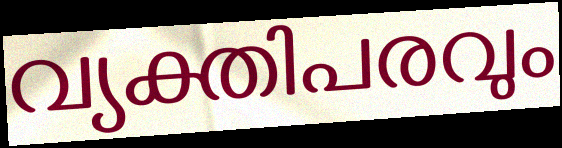
വ്യക്തിപരവും